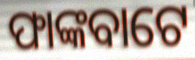
ଫାଙ୍କବାଟେ